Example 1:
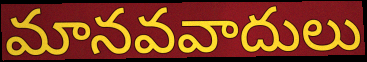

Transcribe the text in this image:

మానవవాదులు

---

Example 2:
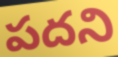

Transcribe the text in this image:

పదని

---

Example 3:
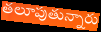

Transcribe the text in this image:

తలూపుతున్నారు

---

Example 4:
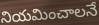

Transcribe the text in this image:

నియమించాలనే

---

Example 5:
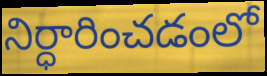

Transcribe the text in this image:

నిర్ధారించడంలో